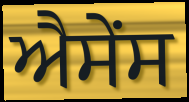
ਐਸੇਂਸ